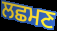
ਲਛਮਣ